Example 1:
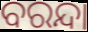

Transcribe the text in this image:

ବରନ୍ଦା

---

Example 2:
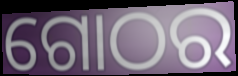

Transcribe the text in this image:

ଗୋଠର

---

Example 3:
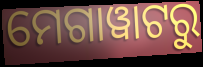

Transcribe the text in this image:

ମେଗାୱାଟରୁ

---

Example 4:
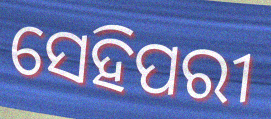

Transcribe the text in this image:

ସେହିପରୀ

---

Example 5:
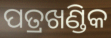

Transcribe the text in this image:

ପତ୍ରଖଣ୍ଡିକ